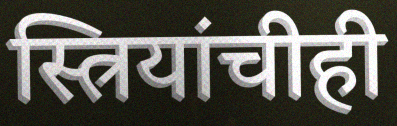
स्त्रियांचीही